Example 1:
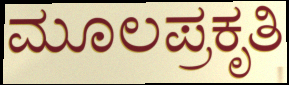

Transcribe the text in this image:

ಮೂಲಪ್ರಕೃತಿ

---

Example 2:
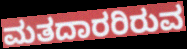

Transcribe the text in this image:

ಮತದಾರರಿರುವ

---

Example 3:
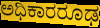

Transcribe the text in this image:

ಅಧಿಕಾರರೂಢ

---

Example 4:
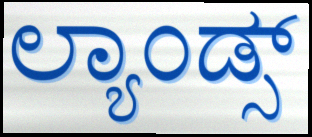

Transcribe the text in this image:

ಲ್ಯಾಂಡ್ಸ್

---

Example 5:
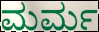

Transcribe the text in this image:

ಮರ್ಮ